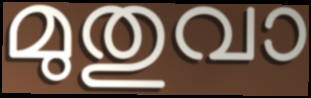
മുതുവാ